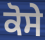
ਕੋਸੇ